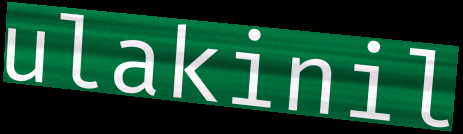
ulakinil